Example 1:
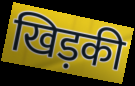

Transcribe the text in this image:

खिड़की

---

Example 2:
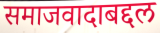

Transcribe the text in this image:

समाजवादाबद्दल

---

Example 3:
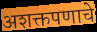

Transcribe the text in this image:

अशक्तपणाचे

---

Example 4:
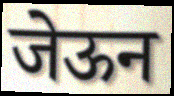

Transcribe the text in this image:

जेऊन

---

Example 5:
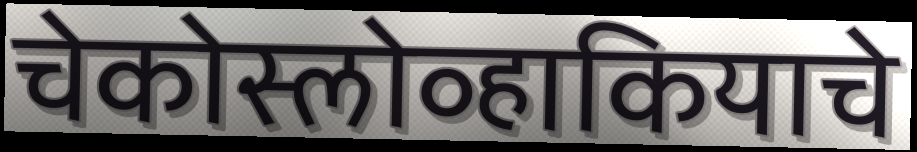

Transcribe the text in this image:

चेकोस्लोव्हाकियाचे